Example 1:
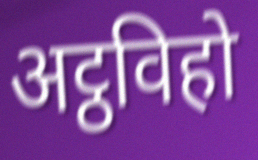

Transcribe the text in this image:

अट्ठविहो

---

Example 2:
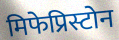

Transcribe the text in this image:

मिफेप्रिस्टोन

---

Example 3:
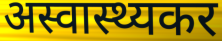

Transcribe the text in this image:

अस्वास्थ्यकर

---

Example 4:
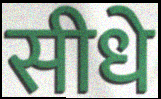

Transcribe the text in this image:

सीधे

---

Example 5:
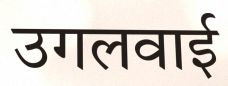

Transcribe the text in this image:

उगलवाई